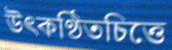
উৎকণ্ঠিতচিত্তে